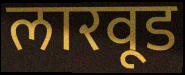
लारवूड